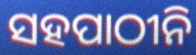
ସହପାଠୀନି